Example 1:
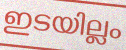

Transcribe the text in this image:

ഇടയില്ലം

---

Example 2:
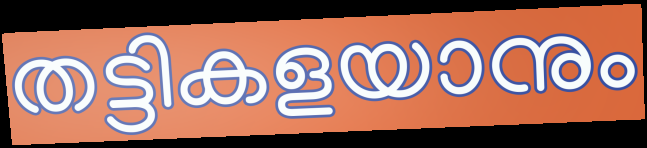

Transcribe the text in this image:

തട്ടികളയാനും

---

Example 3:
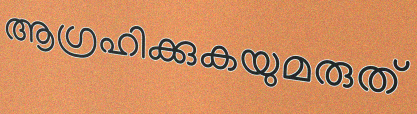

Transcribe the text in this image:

ആഗ്രഹിക്കുകയുമരുത്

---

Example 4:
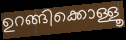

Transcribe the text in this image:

ഉറങ്ങിക്കൊള്ളൂ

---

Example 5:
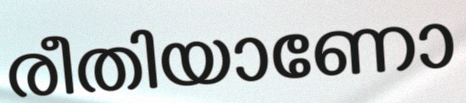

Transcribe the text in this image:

രീതിയാണോ